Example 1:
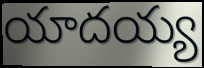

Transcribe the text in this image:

యాదయ్య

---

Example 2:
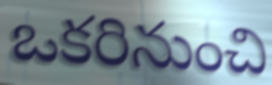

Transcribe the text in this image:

ఒకరినుంచి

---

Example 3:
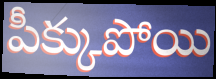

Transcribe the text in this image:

పీక్కుపోయి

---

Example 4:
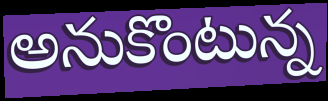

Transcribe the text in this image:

అనుకొంటున్న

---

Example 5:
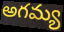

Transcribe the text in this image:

అగమ్య